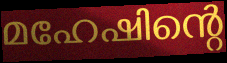
മഹേഷിന്റെ